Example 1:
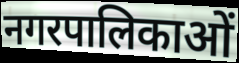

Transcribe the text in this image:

नगरपालिकाओं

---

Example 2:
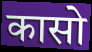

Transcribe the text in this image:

कासो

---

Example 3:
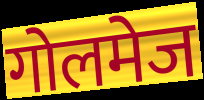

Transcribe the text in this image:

गोलमेज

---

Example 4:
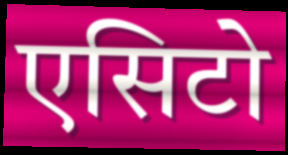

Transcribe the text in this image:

एसिटो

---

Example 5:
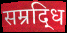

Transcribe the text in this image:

सम्रद्धि